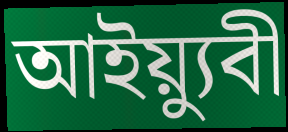
আইয়্যুবী